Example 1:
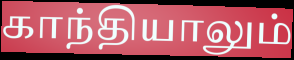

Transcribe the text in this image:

காந்தியாலும்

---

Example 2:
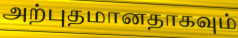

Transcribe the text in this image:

அற்புதமானதாகவும்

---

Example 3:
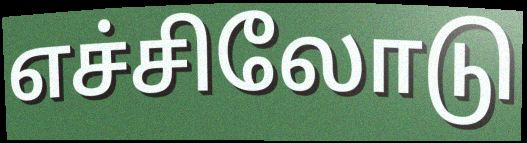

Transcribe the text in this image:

எச்சிலோடு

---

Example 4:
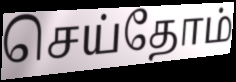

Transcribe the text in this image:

செய்தோம்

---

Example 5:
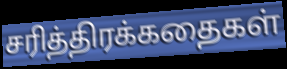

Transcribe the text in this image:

சரித்திரக்கதைகள்